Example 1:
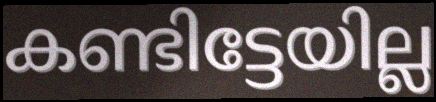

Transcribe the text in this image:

കണ്ടിട്ടേയില്ല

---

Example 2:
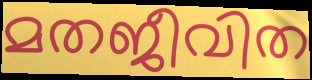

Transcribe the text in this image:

മതജീവിത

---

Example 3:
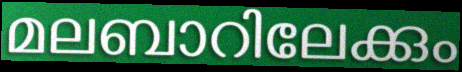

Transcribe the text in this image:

മലബാറിലേക്കും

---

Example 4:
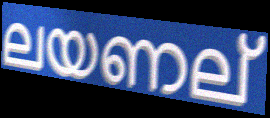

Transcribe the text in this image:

ലയണല്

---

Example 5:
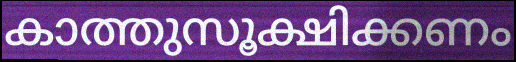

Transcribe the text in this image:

കാത്തുസൂക്ഷിക്കണം